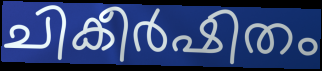
ചികീർഷിതം